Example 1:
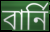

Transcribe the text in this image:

বার্নি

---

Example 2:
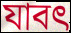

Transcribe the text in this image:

যাবৎ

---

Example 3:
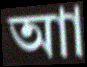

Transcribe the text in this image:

আা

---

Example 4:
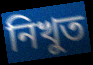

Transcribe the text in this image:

নিখুত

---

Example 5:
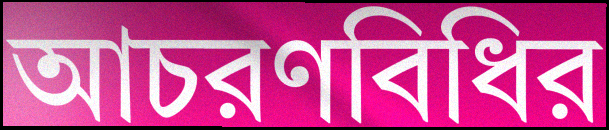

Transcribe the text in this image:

আচরণবিধির